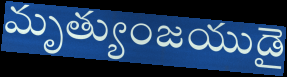
మృత్యుంజయుడై